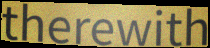
therewith